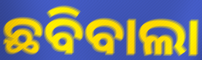
ଛବିବାଲା